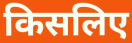
किसलिए